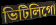
ভিটিলিগো